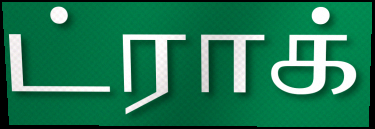
ட்ராக்